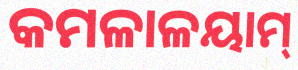
କମଳାଳୟାମ୍